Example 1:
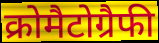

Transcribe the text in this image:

क्रोमैटोग्रैफी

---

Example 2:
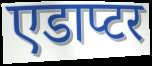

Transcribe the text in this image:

एडाप्टर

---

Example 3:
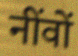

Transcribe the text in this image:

नींवों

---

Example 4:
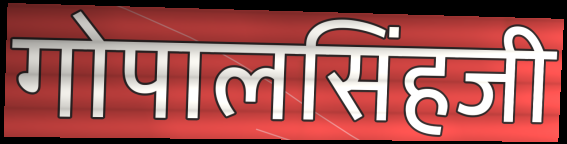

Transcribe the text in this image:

गोपालसिंहजी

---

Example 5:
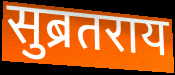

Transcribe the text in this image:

सुब्रतराय